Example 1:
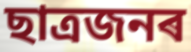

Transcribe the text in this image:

ছাত্ৰজনৰ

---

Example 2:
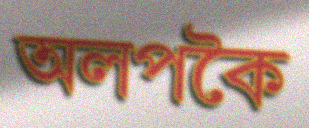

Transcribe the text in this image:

অলপকৈ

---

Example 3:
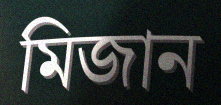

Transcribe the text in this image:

মিজান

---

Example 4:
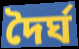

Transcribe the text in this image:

দৈৰ্ঘ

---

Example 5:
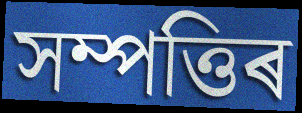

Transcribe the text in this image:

সম্পত্তিৰ